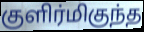
குளிர்மிகுந்த